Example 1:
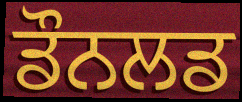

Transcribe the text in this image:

ਡੌਨਲਡ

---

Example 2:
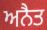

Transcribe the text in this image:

ਅਨੈਤ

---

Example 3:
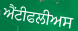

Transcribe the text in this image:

ਐਂਟੀਫਲੀਅਸ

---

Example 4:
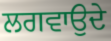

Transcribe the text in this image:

ਲਗਵਾਉਦੇ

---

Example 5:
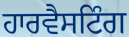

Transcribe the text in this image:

ਹਾਰਵੈਸਟਿੰਗ